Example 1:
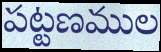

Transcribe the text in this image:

పట్టణముల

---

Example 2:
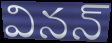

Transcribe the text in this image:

వినన్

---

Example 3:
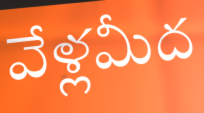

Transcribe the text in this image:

వేళ్లమీద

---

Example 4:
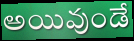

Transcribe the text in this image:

అయివుండే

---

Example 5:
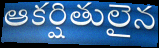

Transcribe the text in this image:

ఆకర్షితులైన